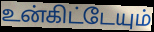
உன்கிட்டேயும்